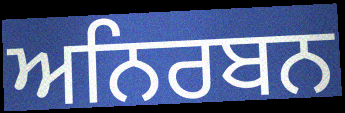
ਅਨਿਰਬਨ